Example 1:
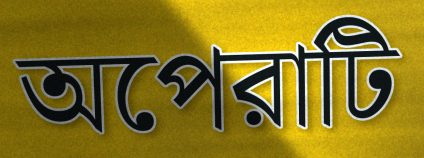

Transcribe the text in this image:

অপেরাটি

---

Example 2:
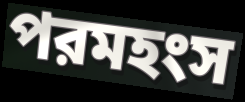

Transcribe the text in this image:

পরমহংস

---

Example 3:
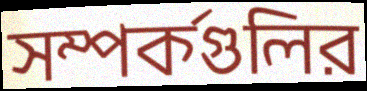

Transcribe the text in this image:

সম্পর্কগুলির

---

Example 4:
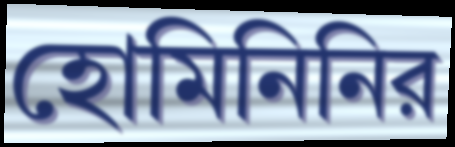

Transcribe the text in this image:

হোমিনিনির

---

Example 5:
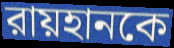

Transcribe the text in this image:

রায়হানকে